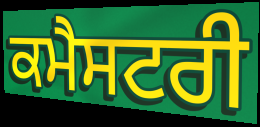
ਕਮੈਸਟਰੀ